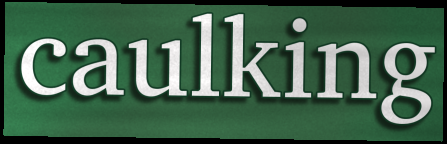
caulking